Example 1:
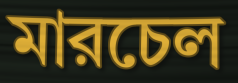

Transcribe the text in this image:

মারচেল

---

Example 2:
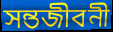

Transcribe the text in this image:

সন্তজীবনী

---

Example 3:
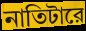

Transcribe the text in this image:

নাতিটারে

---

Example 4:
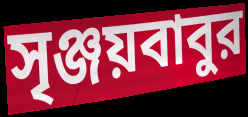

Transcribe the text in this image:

সৃঞ্জয়বাবুর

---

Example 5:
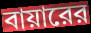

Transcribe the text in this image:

বায়ারের